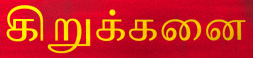
கிறுக்கனை